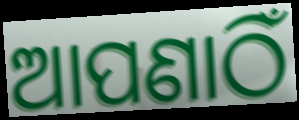
ଆପଣାଠିଁ